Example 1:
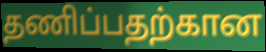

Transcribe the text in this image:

தணிப்பதற்கான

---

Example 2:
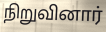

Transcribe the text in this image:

நிறுவினார்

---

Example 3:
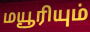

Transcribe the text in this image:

மயூரியும்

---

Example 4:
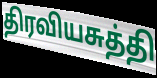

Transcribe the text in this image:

திரவியசுத்தி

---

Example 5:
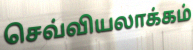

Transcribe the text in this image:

செவ்வியலாக்கம்